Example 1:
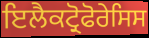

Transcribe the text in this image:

ਇਲੈਕਟ੍ਰੋਫੋਰੇਸਿਸ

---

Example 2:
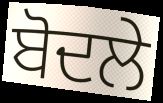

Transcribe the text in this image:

ਬੋਦਲੇ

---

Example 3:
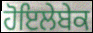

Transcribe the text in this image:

ਹੋਇਲੇਬੇਕ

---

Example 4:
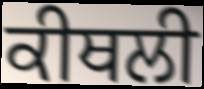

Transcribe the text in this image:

ਕੀਥਲੀ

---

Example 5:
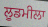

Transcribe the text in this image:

ਲੂਡਮੀਲਾ